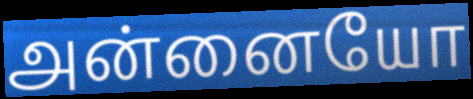
அன்னையோ